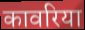
कावरिया